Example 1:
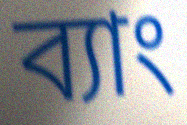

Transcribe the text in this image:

ব্যাং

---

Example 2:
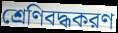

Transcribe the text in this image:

শ্রেণিবদ্ধকরণ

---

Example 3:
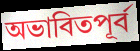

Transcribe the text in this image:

অভাবিতপূর্ব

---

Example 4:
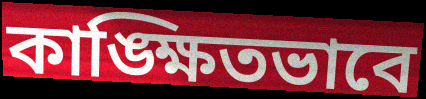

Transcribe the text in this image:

কাঙ্ক্ষিতভাবে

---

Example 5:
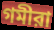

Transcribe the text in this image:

গমীরা